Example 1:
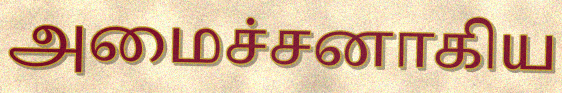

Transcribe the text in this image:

அமைச்சனாகிய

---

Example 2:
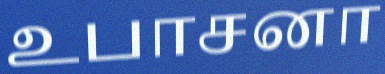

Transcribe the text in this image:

உபாசனா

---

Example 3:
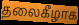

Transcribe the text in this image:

தலைகீழாக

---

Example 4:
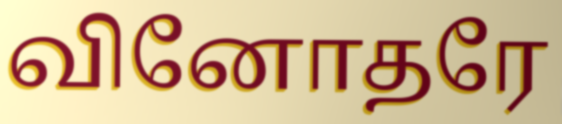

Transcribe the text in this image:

வினோதரே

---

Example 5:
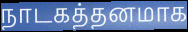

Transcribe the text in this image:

நாடகத்தனமாக